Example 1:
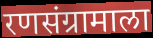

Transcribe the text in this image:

रणसंग्रामाला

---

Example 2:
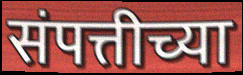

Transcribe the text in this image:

संपत्तीच्या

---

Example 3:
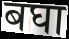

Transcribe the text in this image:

बघा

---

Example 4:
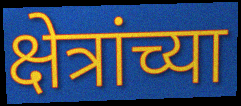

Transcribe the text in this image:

क्षेत्रांच्या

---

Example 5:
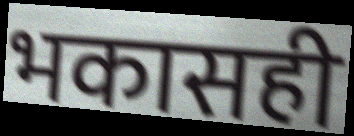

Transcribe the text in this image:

भकासही